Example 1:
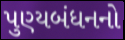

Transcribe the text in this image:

પુણ્યબંધનનો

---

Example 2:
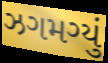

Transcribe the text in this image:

ઝગમગ્યું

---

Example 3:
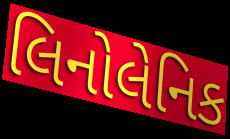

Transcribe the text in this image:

લિનોલેનિક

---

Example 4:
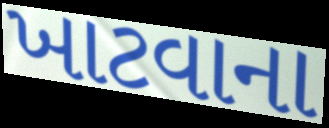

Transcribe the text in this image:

ખાટવાના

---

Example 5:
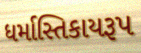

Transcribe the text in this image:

ધર્માસ્તિકાયરૂપ